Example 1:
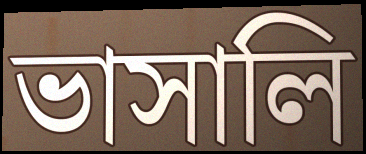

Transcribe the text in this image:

ভাসালি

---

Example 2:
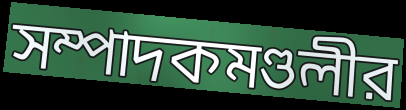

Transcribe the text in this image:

সম্পাদকমণ্ডলীর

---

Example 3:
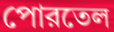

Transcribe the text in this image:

পোরতেল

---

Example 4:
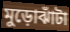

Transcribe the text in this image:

মুড়োঝাঁটা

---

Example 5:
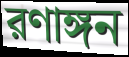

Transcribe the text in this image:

রণাঙ্গন